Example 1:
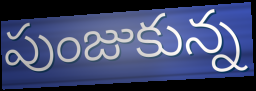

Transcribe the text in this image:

పుంజుకున్న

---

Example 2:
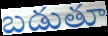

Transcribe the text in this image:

బడుతూ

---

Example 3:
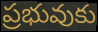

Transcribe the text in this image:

ప్రభువుకు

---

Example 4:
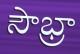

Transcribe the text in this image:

సౌభ్రా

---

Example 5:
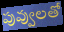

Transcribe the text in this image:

పువ్వులతో